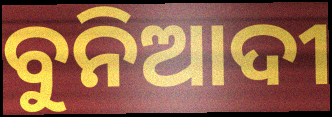
ବୁନିଆଦୀ